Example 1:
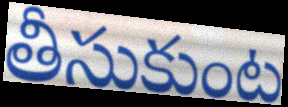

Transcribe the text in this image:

తీసుకుంట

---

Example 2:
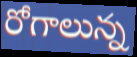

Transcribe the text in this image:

రోగాలున్న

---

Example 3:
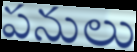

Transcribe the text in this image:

పనులు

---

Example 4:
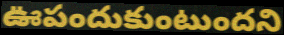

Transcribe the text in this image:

ఊపందుకుంటుందని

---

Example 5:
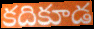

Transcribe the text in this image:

కదికూడ